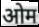
ओम